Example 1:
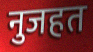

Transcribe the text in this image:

नुजहत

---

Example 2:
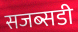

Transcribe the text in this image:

सजब्सडी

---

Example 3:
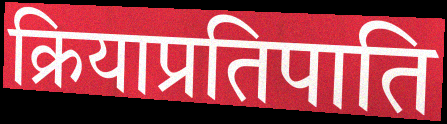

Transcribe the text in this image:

क्रियाप्रतिपाति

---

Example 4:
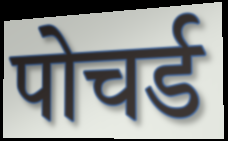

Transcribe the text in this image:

पोचर्ड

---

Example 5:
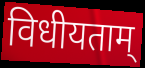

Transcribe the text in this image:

विधीयताम्